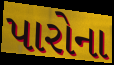
પારોના